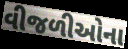
વીજળીઓના